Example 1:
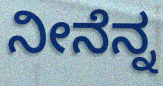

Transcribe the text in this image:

ನೀನೆನ್ನ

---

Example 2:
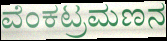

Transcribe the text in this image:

ವೆಂಕಟ್ರಮಣನ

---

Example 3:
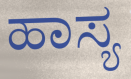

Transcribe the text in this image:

ಹಾಸ್ಯ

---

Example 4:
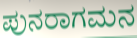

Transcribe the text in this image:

ಪುನರಾಗಮನ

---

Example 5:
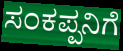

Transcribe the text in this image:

ಸಂಕಪ್ಪನಿಗೆ